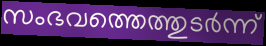
സംഭവത്തെത്തുടർന്ന്